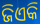
ଜିଏକି